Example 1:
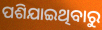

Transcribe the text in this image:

ପଶିଯାଇଥିବାରୁ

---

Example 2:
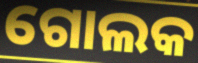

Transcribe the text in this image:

ଗୋଲକ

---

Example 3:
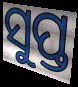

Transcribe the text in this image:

ସୁପ୍ତ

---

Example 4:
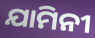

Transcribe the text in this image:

ଯାମିନୀ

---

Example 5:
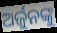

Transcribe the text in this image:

ଅର୍ଜୁନଙ୍କୁ